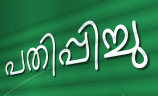
പതിപ്പിച്ചു